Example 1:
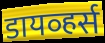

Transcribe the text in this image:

डायव्हर्स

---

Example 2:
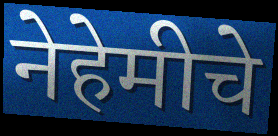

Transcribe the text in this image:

नेहेमीचे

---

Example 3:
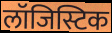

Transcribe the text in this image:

लॉजिस्टिक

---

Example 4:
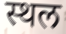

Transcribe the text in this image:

स्थल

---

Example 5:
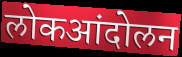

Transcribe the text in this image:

लोकआंदोलन